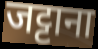
जट्टाना